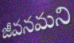
జీవనమని